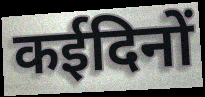
कईदिनों